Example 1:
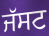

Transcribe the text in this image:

ਜੱਸਟ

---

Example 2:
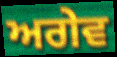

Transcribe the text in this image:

ਅਗੇਵ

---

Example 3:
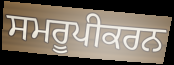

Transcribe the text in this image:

ਸਮਰੂਪੀਕਰਨ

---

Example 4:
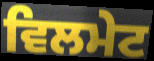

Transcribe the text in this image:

ਵਿਲਮੇਟ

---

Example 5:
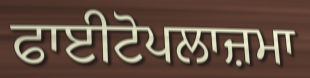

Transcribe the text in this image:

ਫਾਈਟੋਪਲਾਜ਼ਮਾ